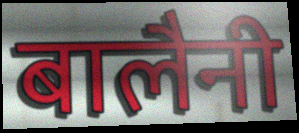
बालैनी